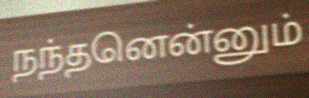
நந்தனென்னும்